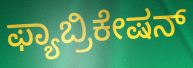
ಫ್ಯಾಬ್ರಿಕೇಷನ್